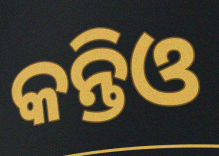
କନ୍ତିଓ